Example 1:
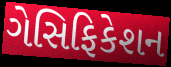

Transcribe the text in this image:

ગેસિફિકેશન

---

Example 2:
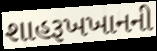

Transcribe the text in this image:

શાહરૂખખાનની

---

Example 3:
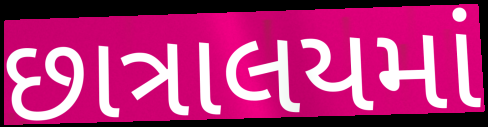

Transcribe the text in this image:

છાત્રાલયમાં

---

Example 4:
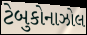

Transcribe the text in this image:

ટેબુકોનાઝોલ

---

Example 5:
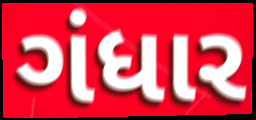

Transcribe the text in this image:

ગંધાર